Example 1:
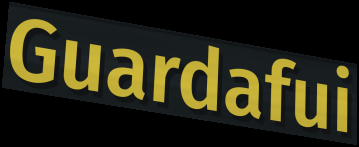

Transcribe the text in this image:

Guardafui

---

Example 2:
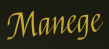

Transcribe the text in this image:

Manege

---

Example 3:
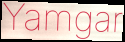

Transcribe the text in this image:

Yamgar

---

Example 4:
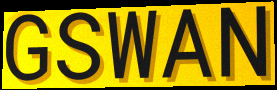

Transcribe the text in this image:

GSWAN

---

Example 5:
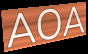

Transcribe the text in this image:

AOA